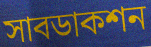
সাবডাকশন